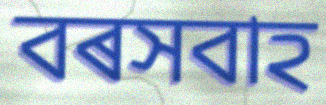
বৰসবাহ